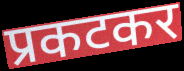
प्रकटकर